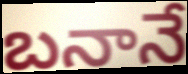
బనానే